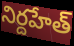
నిర్దహేత్